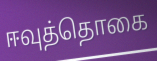
ஈவுத்தொகை